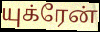
யுக்ரேன்